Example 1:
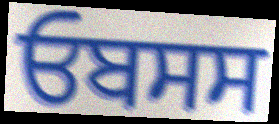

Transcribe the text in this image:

ਓਬਸਸ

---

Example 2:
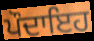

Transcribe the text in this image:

ਪੌਦਾਇਹ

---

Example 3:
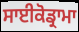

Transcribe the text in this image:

ਸਾਈਕੋਡ੍ਰਾਮਾ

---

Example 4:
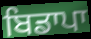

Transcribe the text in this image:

ਬਿਡਾਪਾ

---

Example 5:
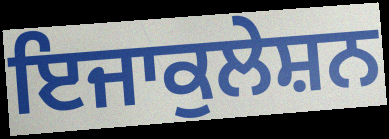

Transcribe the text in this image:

ਇਜਾਕੁਲੇਸ਼ਨ